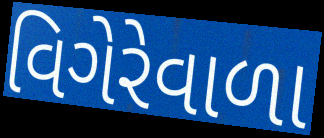
વિગેરેવાળા